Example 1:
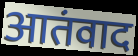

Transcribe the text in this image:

आतंवाद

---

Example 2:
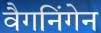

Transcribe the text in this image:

वैगनिंगेन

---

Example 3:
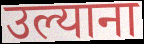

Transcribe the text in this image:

उल्याना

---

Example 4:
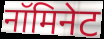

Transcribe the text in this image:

नॉमिनेट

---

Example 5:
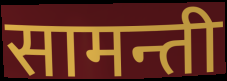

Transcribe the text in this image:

सामन्ती